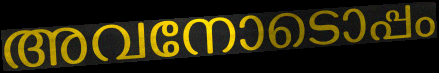
അവനോടൊപ്പം